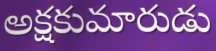
అక్షకుమారుడు